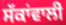
ਸੱਕਾਂਵਾਲੀ